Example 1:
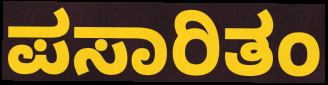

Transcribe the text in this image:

ಪಸಾರಿತಂ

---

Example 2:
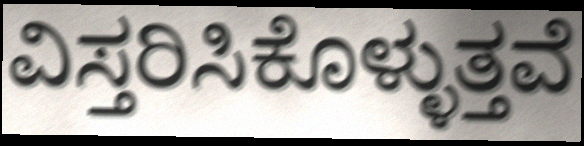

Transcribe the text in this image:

ವಿಸ್ತರಿಸಿಕೊಳ್ಳುತ್ತವೆ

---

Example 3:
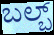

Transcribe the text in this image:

ಬಲ್ಬ್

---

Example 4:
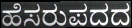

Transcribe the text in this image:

ಹೆಸರುಪದದ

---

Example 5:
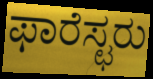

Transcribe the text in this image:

ಫಾರೆಸ್ಟರು